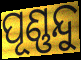
ପୂଣ୍ଣନ୍ଦୁ